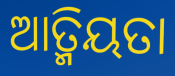
ଆତ୍ମିୟତା